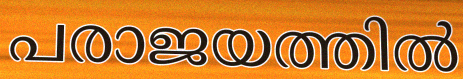
പരാജയത്തിൽ